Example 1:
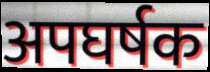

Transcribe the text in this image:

अपघर्षक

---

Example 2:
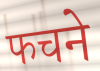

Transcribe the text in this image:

फचने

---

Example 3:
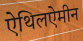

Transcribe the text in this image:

ऐथिलऐमीन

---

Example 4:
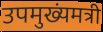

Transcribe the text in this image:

उपमुख्यंमत्री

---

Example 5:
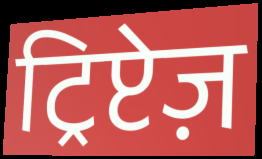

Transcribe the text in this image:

ट्रिप्टेज़